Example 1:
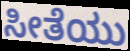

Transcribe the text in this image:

ಸೀತೆಯು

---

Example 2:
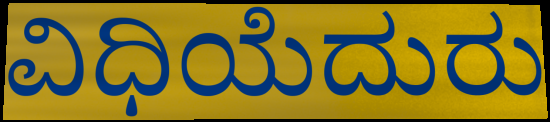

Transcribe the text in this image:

ವಿಧಿಯೆದುರು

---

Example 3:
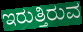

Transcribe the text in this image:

ಇರುತ್ತಿರುವ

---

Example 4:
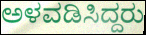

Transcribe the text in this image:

ಅಳವಡಿಸಿದ್ದರು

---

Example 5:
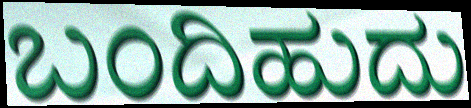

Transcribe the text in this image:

ಬಂದಿಹುದು